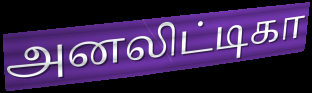
அனலிட்டிகா